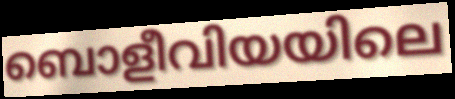
ബൊളീവിയയിലെ